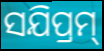
ସଯିପ୍ରମ୍